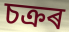
চক্ৰৰ